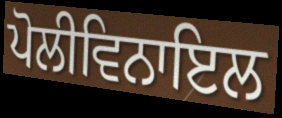
ਪੋਲੀਵਿਨਾਇਲ